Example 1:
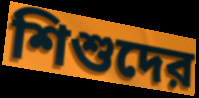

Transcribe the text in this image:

শিশুদের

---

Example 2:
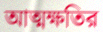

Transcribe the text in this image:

আত্মক্ষতির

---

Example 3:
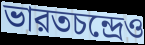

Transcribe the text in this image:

ভারতচন্দ্রেও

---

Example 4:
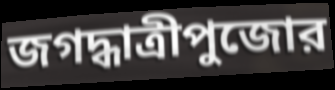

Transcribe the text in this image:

জগদ্ধাত্রীপুজোর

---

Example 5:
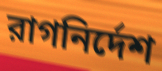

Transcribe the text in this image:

রাগনির্দেশ